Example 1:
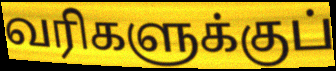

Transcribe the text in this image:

வரிகளுக்குப்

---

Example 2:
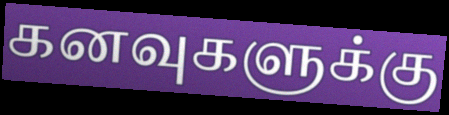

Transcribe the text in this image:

கனவுகளுக்கு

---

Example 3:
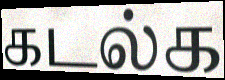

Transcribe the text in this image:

கடல்க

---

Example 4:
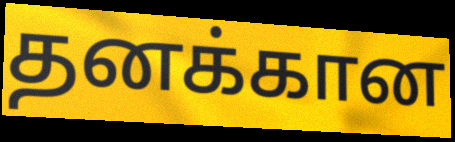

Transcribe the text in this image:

தனக்கான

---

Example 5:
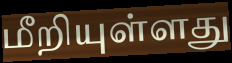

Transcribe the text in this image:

மீறியுள்ளது